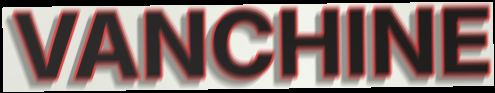
VANCHINE